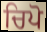
ਚਿਪੋ